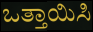
ಒತ್ತಾಯಿಸಿ